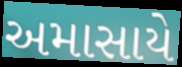
અમાસાયે